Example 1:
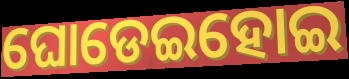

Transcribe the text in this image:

ଘୋଡେଇହୋଇ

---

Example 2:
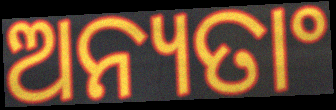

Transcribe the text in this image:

ଅନ୍ୟତାଂ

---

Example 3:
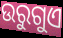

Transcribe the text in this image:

ଉରୁଗୁଏ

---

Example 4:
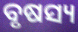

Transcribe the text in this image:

ବୃଷସ୍ୟ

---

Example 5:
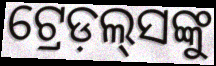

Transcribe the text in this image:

ଟ୍ରେଡ଼ଲ୍‍ସଙ୍କୁ